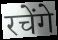
रचेंगे